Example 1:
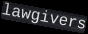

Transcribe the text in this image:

lawgivers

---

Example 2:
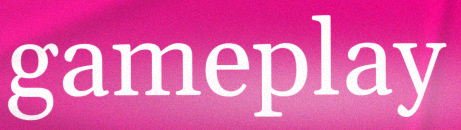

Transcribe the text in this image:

gameplay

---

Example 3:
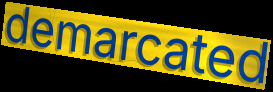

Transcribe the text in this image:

demarcated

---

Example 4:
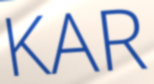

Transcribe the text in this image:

KAR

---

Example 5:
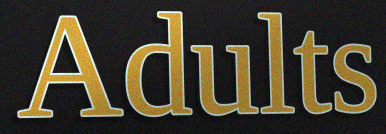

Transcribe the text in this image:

Adults